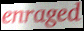
enraged